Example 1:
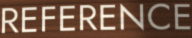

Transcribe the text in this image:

REFERENCE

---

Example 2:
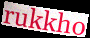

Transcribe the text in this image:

rukkho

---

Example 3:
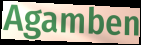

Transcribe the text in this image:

Agamben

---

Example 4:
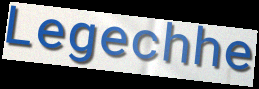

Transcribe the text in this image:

Legechhe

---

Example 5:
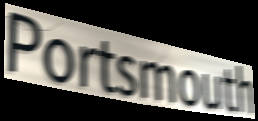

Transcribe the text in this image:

Portsmouth